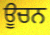
ਊਚਨ